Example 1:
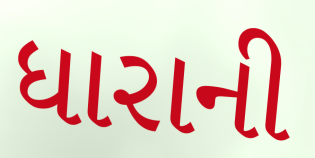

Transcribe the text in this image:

ધારાની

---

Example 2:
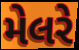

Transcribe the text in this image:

મેલરે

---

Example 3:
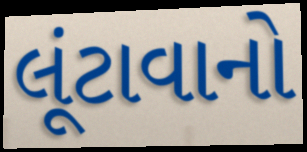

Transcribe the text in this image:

લૂંટાવાનો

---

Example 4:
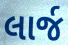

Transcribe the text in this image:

લાર્જ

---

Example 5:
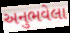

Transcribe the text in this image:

અનુભવેલા